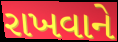
રાખવાને